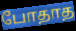
போதாத